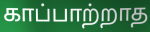
காப்பாற்றாத